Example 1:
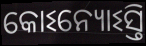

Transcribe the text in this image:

କୋଽନ୍ୟୋଽସ୍ତି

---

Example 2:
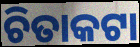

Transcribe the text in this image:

ଚିତାକଟା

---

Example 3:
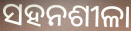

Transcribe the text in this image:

ସହନଶୀଳା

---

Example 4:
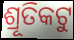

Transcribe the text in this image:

ଶ୍ରୂତିକଟୁ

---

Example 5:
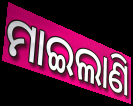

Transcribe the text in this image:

ମାଇଲାଣି